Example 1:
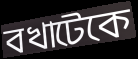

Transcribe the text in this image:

বখাটেকে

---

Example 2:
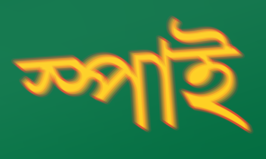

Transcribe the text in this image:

স্পাই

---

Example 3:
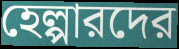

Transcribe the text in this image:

হেল্পারদের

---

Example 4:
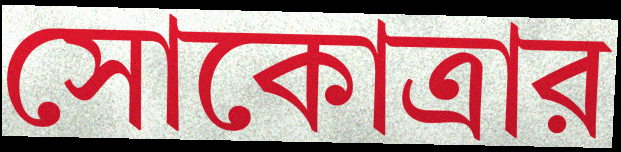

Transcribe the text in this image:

সোকোত্রার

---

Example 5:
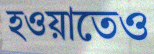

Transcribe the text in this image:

হওয়াতেও